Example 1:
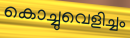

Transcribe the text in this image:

കൊച്ചുവെളിച്ചം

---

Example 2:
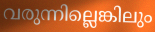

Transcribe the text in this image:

വരുന്നില്ലെങ്കിലും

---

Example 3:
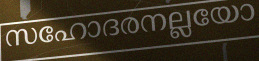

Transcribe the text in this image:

സഹോദരനല്ലയോ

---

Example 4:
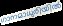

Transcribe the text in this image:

ഗാനമാധുരിയിൽ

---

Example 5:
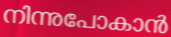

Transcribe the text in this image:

നിന്നുപോകാൻ